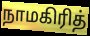
நாமகிரித்